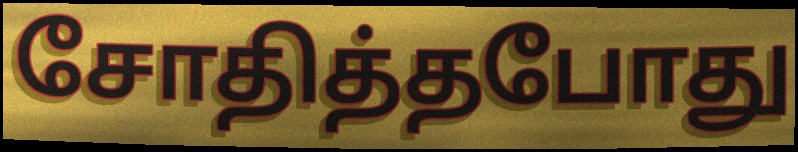
சோதித்தபோது